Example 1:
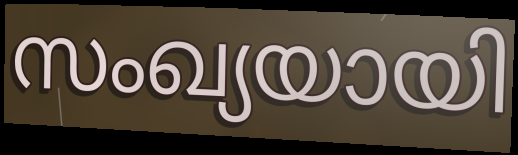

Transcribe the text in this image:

സംഖ്യയായി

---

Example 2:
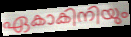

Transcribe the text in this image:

ഏകാകിനിയും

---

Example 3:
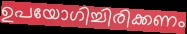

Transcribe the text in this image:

ഉപയോഗിച്ചിരിക്കണം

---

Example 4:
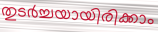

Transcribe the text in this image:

തുടർച്ചയായിരിക്കാം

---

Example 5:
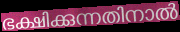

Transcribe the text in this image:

ഭക്ഷിക്കുന്നതിനാൽ